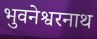
भुवनेश्वरनाथ